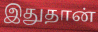
இதுதான்